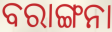
ବରାଙ୍ଗନା